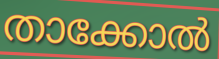
താക്കോൽ